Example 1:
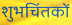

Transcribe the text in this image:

शुभचिंतकों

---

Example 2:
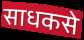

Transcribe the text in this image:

साधकसे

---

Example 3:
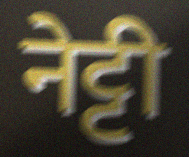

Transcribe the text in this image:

नेट्टी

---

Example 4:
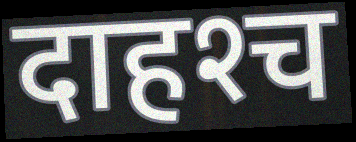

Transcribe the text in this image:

दाहश्च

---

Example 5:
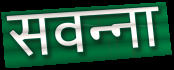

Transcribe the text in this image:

सवन्ना